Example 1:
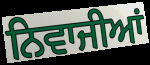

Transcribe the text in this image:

ਨਿਵਾਜੀਆਂ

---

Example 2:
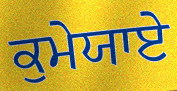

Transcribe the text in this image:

ਕੁਮੇਯਾਏ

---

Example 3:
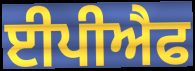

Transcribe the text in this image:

ਈਪੀਐਫ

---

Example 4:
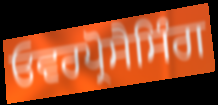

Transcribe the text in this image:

ਓਵਰਪ੍ਰੋਸੈਸਿੰਗ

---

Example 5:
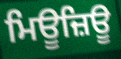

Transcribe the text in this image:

ਮਿਊਜ਼ਿਊ